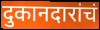
दुकानदारांचं